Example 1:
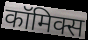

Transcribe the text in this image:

कॉमिक्स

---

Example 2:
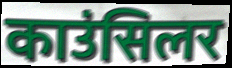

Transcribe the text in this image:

काउंसिलर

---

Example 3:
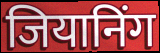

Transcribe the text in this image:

जियानिंग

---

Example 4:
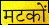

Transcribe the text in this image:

मटकों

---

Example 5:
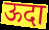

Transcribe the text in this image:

ऊदा